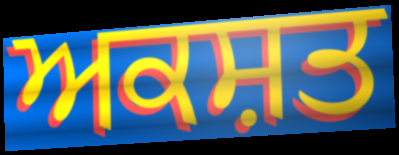
ਅਕਸ਼ਤ